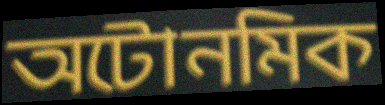
অটোনমিক